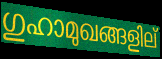
ഗുഹാമുഖങ്ങളില്